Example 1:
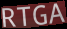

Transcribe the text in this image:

RTGA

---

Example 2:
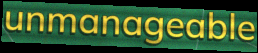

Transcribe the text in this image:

unmanageable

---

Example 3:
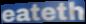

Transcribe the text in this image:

eateth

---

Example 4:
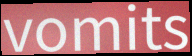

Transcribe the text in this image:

vomits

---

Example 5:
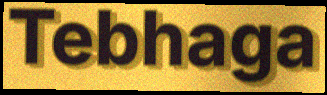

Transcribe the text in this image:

Tebhaga